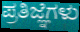
ಪ್ರತಿಜ್ಞೆಗಳು